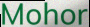
Mohor